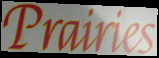
Prairies